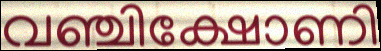
വഞ്ചിക്ഷോണി